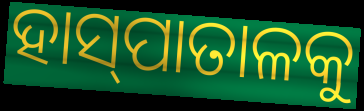
ହାସ୍‍ପାତାଳକୁ